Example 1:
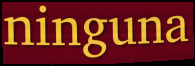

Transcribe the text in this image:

ninguna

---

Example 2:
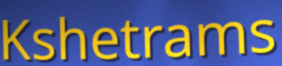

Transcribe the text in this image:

Kshetrams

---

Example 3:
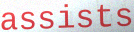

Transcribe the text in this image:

assists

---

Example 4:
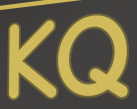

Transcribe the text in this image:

KQ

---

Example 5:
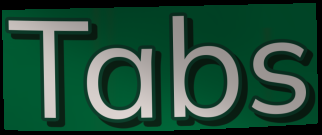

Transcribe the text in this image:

Tabs